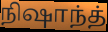
நிஷாந்த்